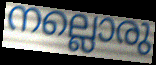
നല്ലൊരു